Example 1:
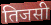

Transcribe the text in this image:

तिजसी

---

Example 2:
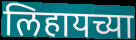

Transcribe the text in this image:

लिहायच्या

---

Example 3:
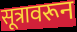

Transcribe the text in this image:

सूत्रावरून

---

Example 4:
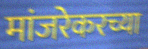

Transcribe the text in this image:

मांजरेकरच्या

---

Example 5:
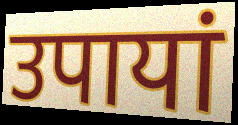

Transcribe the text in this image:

उपायां